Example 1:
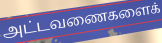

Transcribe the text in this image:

அட்டவணைகளைக்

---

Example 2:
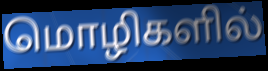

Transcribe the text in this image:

மொழிகளில்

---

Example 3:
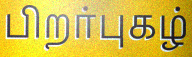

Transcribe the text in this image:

பிறர்புகழ்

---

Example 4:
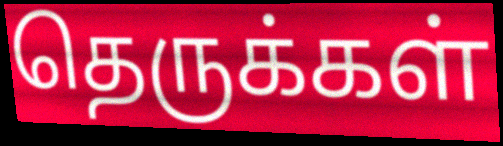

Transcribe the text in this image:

தெருக்கள்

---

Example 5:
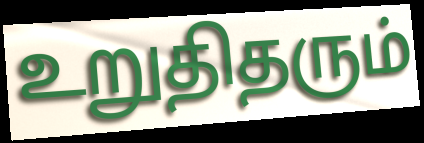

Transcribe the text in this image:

உறுதிதரும்